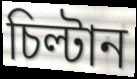
চিল্টান